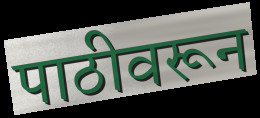
पाठीवरून